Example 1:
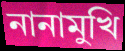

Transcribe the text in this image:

নানামুখি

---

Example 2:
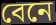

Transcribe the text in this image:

বেনে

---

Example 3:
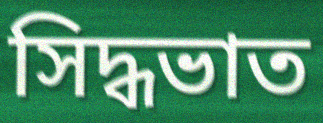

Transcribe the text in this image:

সিদ্ধভাত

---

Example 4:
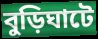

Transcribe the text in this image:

বুড়িঘাটে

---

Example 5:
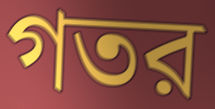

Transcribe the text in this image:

গতর